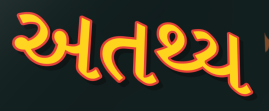
અતથ્ય